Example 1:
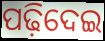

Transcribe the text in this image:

ପଢ଼ିଦେଇ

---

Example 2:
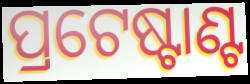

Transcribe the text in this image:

ପ୍ରଟେଷ୍ଟାଣ୍ଟ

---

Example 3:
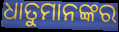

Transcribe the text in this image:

ଧାତୁମାନଙ୍କର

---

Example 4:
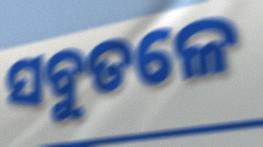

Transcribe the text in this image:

ସବୁତଳେ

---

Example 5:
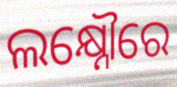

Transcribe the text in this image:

ଲକ୍ଷ୍ନୌରେ